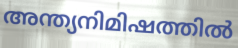
അന്ത്യനിമിഷത്തിൽ